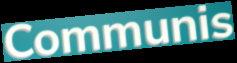
Communis